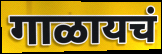
गाळायचं